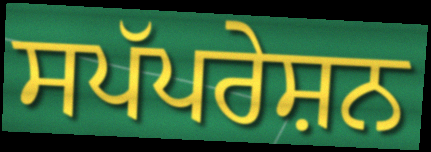
ਸਪੱਪਰੇਸ਼ਨ